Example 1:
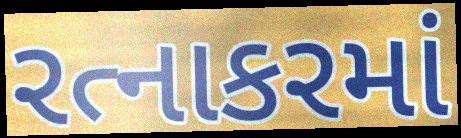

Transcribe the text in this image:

રત્નાકરમાં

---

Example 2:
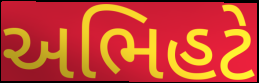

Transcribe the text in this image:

અભિહટે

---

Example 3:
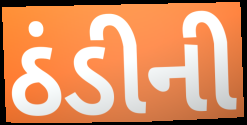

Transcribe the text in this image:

ઠંડીની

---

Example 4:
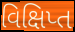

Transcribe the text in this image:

વિક્ષિપ્ત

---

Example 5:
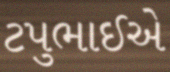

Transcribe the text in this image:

ટપુભાઈએ